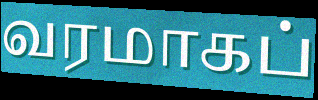
வரமாகப்